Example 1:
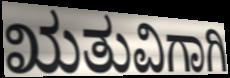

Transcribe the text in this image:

ಋತುವಿಗಾಗಿ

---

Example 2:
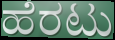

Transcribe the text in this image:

ಹೆರಟು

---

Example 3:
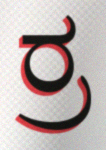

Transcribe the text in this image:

ರ್ರ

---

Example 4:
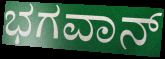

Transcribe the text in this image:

ಭಗವಾನ್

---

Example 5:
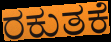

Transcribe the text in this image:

ರಕುತಕೆ